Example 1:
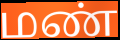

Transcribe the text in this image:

மண்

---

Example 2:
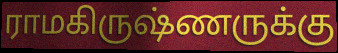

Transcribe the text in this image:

ராமகிருஷ்ணருக்கு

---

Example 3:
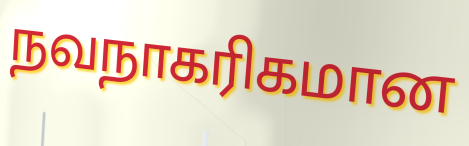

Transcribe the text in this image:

நவநாகரிகமான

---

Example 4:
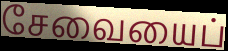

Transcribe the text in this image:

சேவையைப்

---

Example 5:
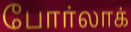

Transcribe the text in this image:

போர்லாக்